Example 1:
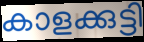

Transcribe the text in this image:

കാളക്കുട്ടി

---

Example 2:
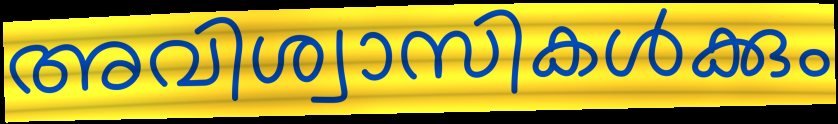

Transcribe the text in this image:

അവിശ്വാസികൾക്കും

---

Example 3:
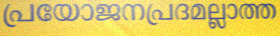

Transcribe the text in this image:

പ്രയോജനപ്രദമല്ലാത്ത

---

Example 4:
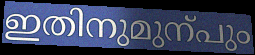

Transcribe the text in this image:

ഇതിനുമുന്പും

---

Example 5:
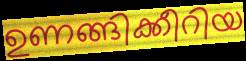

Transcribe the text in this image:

ഉണങ്ങിക്കീറിയ